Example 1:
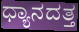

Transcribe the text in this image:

ಧ್ಯಾನದತ್ತ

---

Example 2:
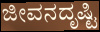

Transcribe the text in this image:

ಜೀವನದೃಷ್ಟಿ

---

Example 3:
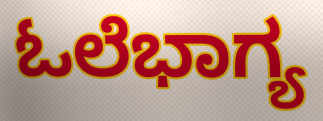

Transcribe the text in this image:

ಓಲೆಭಾಗ್ಯ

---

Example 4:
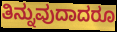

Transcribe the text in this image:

ತಿನ್ನುವುದಾದರೂ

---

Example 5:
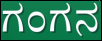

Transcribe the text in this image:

ಗಂಗನ